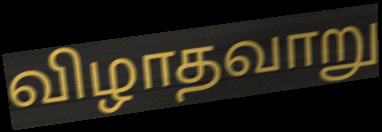
விழாதவாறு